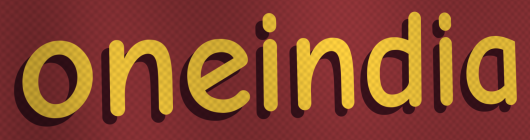
oneindia